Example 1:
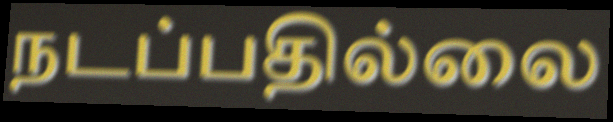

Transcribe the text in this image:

நடப்பதில்லை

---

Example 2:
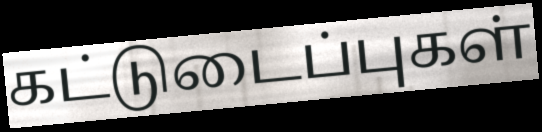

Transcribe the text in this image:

கட்டுடைப்புகள்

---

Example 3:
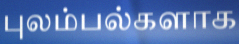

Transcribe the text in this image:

புலம்பல்களாக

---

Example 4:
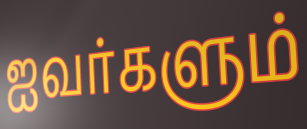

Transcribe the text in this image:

ஐவர்களும்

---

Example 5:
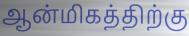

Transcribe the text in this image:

ஆன்மிகத்திற்கு